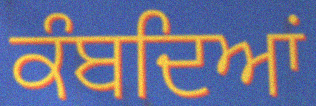
ਕੰਬਦਿਆਂ